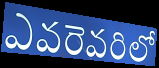
ఎవరెవరిలో